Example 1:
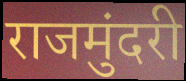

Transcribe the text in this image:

राजमुंदरी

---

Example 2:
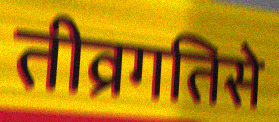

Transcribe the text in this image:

तीव्रगतिसे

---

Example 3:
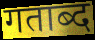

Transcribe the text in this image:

गताब्द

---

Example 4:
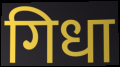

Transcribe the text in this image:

गिधा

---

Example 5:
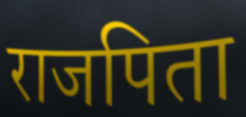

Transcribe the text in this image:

राजपिता